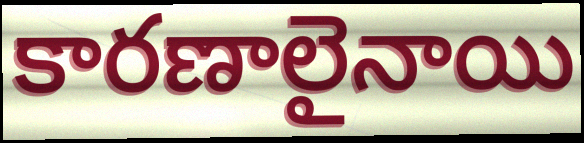
కారణాలైనాయి